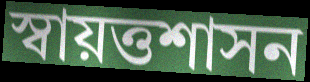
স্বায়ত্তশাসন